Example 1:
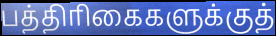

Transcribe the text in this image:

பத்திரிகைகளுக்குத்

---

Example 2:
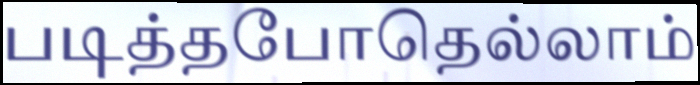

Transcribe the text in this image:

படித்தபோதெல்லாம்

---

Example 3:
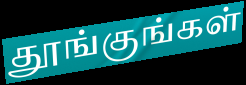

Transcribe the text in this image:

தூங்குங்கள்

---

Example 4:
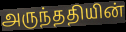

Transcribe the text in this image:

அருந்ததியின்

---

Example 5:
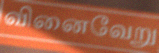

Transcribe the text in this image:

வினைவேறு